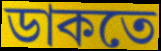
ডাকতে